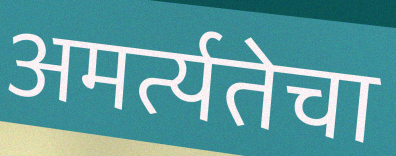
अमर्त्यतेचा